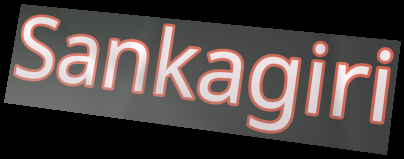
Sankagiri